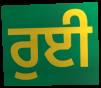
ਰੁਈ